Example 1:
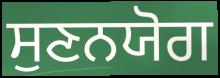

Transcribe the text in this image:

ਸੁਣਨਯੋਗ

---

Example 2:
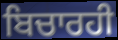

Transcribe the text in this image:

ਬਿਚਾਰਹੀ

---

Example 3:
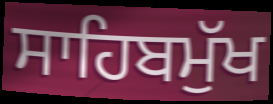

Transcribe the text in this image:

ਸਾਹਿਬਮੁੱਖ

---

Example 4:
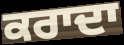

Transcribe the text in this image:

ਕਰਾਦਾ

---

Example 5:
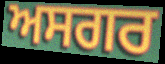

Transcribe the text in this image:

ਅਸਗਰ